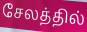
சேலத்தில்